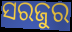
ସରଜୁର